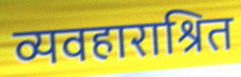
व्यवहाराश्रित